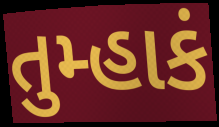
તુમ્હાકં